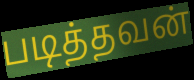
படித்தவன்